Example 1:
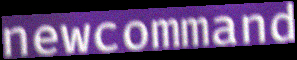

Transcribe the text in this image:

newcommand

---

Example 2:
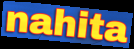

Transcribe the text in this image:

nahita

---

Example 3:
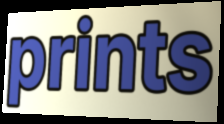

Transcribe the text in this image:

prints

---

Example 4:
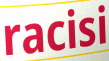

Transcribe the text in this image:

racisi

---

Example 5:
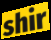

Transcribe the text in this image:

shir